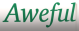
Aweful